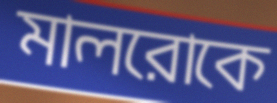
মালরোকে